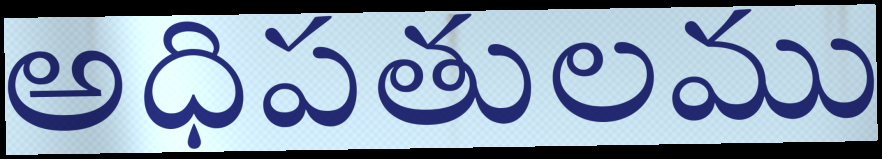
అధిపతులము